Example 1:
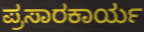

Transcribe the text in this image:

ಪ್ರಸಾರಕಾರ್ಯ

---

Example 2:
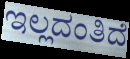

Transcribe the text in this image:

ಇಲ್ಲದಂತಿದೆ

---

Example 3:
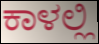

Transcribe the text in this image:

ಕಾಳಲ್ಲಿ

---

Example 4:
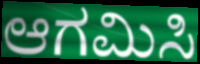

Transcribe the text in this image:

ಆಗಮಿಸಿ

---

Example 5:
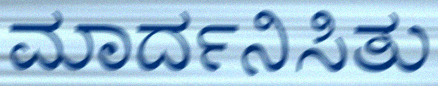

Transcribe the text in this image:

ಮಾರ್ದನಿಸಿತು